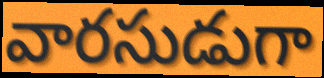
వారసుడుగా